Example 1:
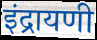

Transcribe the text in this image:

इंद्रायणी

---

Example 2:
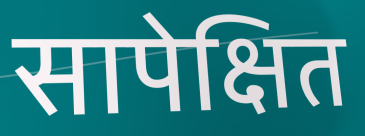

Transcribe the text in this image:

सापेक्षित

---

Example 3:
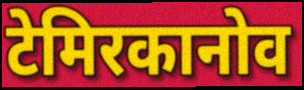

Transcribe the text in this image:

टेमिरकानोव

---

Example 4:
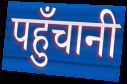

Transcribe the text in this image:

पहुँचानी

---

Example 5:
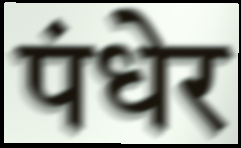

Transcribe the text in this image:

पंधेर